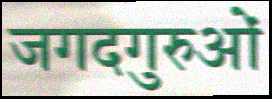
जगदगुरुओं